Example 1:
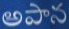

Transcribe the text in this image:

అపాన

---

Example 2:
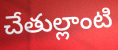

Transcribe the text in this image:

చేతుల్లాంటి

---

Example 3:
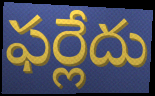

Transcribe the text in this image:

ఫర్లేదు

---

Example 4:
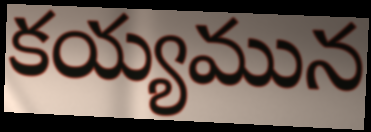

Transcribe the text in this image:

కయ్యమున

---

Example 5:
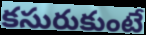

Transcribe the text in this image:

కసురుకుంటే